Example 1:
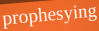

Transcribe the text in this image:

prophesying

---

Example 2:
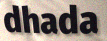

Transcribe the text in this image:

dhada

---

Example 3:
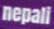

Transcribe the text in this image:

nepali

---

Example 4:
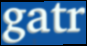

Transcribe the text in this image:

gatr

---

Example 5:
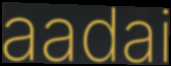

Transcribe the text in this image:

aadai